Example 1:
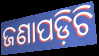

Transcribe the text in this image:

ଜଣାପଡ଼ିଚି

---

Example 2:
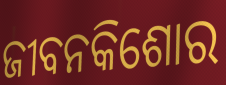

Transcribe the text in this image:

ଜୀବନକିଶୋର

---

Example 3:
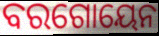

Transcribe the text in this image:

ବରଗୋୟେନ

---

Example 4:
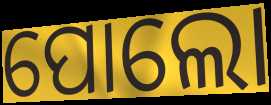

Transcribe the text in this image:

ପୋଲୋ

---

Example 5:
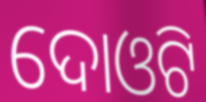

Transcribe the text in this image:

ଦୋଓଟି